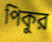
পিকুর